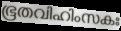
ഭൂതവിഹിംസകഃ